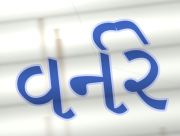
વર્નરે